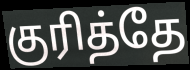
குரித்தே